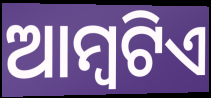
ଆମ୍ବଟିଏ